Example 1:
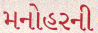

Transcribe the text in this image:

મનોહરની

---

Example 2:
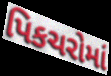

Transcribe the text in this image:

પિકચરોમાં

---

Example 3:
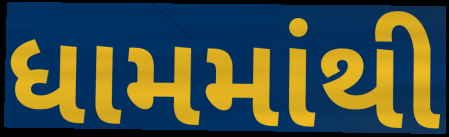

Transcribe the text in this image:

ધામમાંથી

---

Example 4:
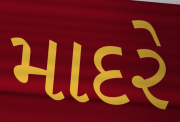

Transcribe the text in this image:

માદરે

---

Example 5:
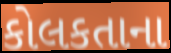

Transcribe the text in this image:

કોલકતાના